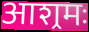
आश्रमः